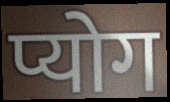
प्योग